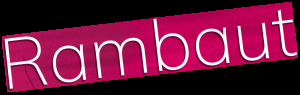
Rambaut